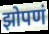
झोपणं